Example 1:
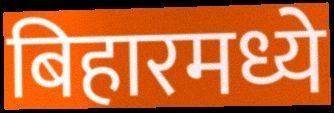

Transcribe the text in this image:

बिहारमध्ये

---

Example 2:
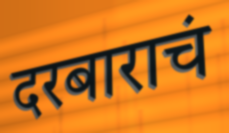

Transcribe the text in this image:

दरबाराचं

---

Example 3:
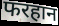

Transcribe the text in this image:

फरहान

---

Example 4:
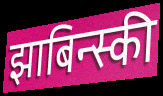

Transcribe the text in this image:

झाबिन्स्की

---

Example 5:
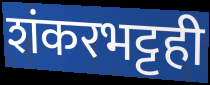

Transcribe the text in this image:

शंकरभट्टही